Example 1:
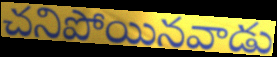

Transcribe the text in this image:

చనిపోయినవాడు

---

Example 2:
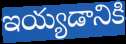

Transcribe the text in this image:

ఇయ్యడానికి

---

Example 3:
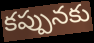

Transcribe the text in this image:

కప్పునకు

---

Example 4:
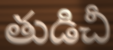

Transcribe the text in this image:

తుడిచీ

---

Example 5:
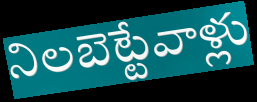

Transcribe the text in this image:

నిలబెట్టేవాళ్లు